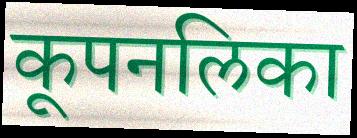
कूपनलिका